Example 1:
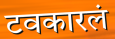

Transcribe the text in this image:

टवकारलं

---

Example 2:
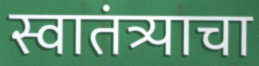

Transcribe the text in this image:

स्वातंत्र्याचा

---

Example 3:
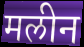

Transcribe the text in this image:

मलीन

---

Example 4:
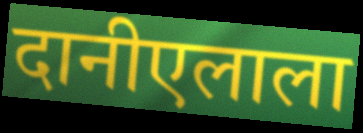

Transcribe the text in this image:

दानीएलाला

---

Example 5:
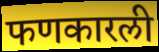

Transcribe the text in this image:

फणकारली